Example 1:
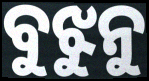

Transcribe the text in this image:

ବୁଝୁନୁ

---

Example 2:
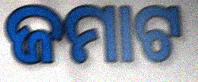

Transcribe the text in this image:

ଜମାଟ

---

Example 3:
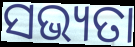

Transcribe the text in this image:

ସଭ୍ଯତା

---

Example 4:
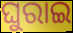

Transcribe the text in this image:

ଘୁରାଇ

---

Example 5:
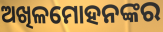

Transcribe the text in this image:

ଅଖିଳମୋହନଙ୍କର